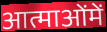
आत्माओंमें